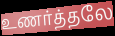
உணர்த்தலே